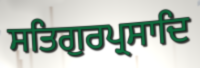
ਸਤਿਗੁਰਪ੍ਰਸਾਦਿ